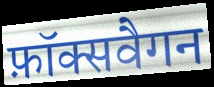
फ़ॉक्सवैगन